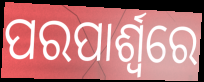
ପରପାର୍ଶ୍ୱରେ